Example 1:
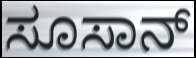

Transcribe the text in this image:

ಸೂಸಾನ್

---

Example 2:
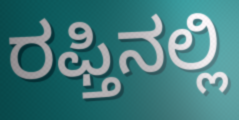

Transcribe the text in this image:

ರಫ್ತಿನಲ್ಲಿ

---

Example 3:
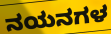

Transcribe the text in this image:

ನಯನಗಳ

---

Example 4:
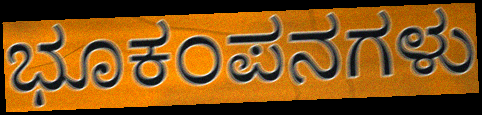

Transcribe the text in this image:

ಭೂಕಂಪನಗಳು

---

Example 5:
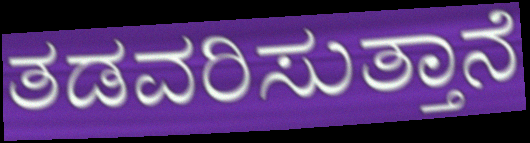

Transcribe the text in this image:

ತಡವರಿಸುತ್ತಾನೆ